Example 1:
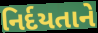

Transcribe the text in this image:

નિર્દયતાને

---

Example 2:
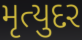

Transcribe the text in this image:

મૃત્યુદર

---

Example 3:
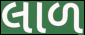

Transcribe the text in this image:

લાળ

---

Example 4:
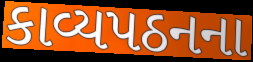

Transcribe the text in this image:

કાવ્યપઠનના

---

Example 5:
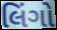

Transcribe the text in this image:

લિંગો